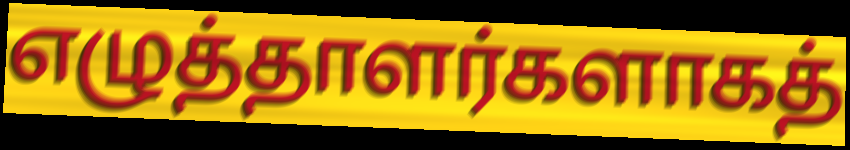
எழுத்தாளர்களாகத்